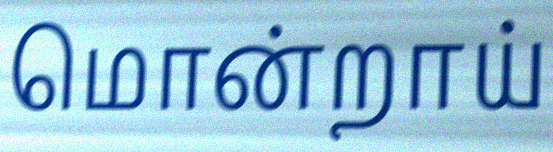
மொன்றாய்